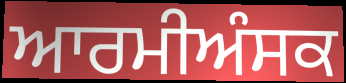
ਆਰਮੀਅੰਸਕ